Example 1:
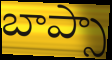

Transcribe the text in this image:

బాప్సా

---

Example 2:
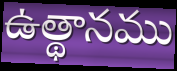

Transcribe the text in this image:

ఉత్థానము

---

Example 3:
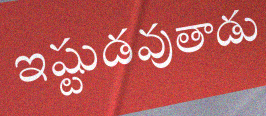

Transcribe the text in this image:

ఇష్టుడవుతాడు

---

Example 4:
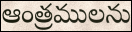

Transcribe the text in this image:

ఆంత్రములను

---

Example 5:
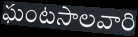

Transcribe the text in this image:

ఘంటసాలవారి